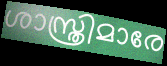
ശാസ്ത്രിമാരേ